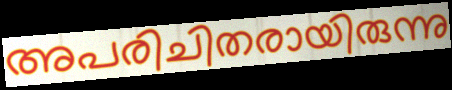
അപരിചിതരായിരുന്നു